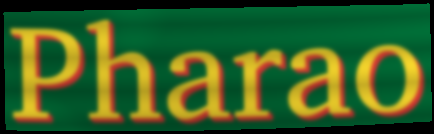
Pharao